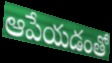
ఆపేయడంతో